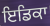
ਇਡਿਕਾ